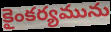
కైంకర్యమును